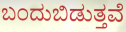
ಬಂದುಬಿಡುತ್ತವೆ